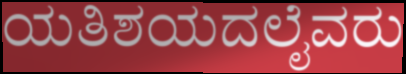
ಯತಿಶಯದಲೈವರು